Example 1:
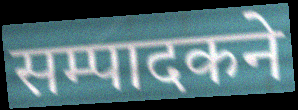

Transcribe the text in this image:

सम्पादकने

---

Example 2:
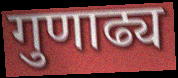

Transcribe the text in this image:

गुणाढ्य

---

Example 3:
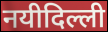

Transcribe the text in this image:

नयीदिल्ली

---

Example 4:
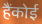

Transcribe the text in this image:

हैंकोई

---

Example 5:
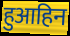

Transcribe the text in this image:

हुआहिन